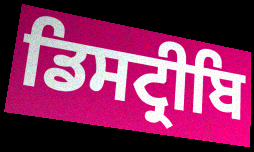
ਡਿਸਟ੍ਰੀਬਿ